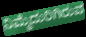
ನಿಮ್ಮೆದುರಿಗಿರುವ